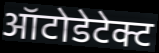
ऑटोडेटेक्ट